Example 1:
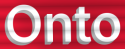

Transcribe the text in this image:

Onto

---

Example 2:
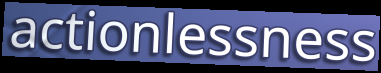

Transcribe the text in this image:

actionlessness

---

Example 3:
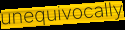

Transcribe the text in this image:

unequivocally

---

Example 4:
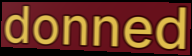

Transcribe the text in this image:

donned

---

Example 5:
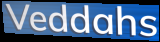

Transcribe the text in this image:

Veddahs